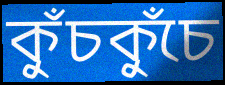
কুঁচকুঁচে